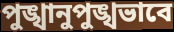
পুঙ্খানুপুঙ্খভাবে